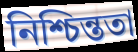
নিশ্চিন্ততা